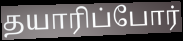
தயாரிப்போர்